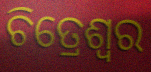
ଚିତ୍ରେଶ୍ୱର